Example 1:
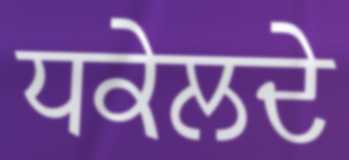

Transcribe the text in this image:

ਧਕੇਲਦੇ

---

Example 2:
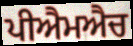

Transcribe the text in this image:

ਪੀਐਮਐਚ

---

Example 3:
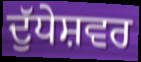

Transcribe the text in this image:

ਦੁੱਧੇਸ਼ਵਰ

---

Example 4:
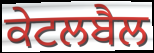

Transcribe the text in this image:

ਕੇਟਲਬੈਲ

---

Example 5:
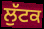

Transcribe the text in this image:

ਲੁੱਟਕ